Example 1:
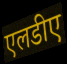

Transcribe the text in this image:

एलडीए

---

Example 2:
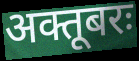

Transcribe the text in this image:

अक्तूबरः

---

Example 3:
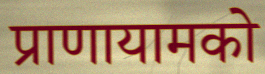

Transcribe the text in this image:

प्राणायामको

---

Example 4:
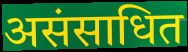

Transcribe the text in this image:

असंसाधित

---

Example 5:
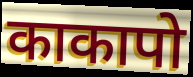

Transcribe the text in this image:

काकापो